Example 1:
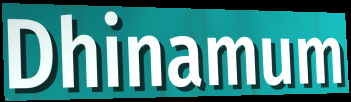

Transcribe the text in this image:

Dhinamum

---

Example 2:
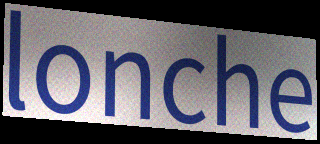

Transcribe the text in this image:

lonche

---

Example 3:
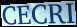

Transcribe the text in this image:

CECRI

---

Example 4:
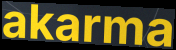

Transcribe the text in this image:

akarma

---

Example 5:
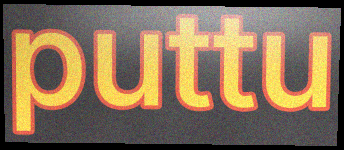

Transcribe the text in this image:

puttu